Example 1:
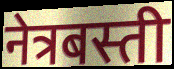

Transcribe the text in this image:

नेत्रबस्ती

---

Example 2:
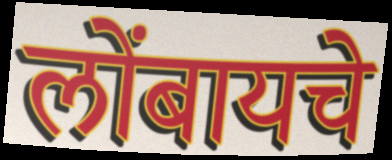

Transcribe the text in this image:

लोंबायचे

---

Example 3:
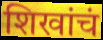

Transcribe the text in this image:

शिखांचं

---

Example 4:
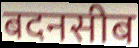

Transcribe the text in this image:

बदनसीब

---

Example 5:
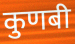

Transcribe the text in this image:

कुणबी